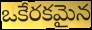
ఒకేరకమైన